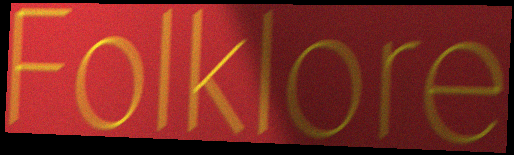
Folklore